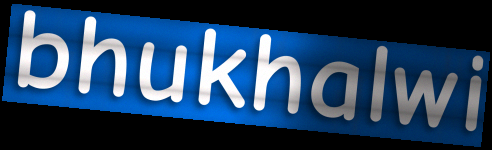
bhukhalwi